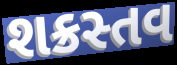
શક્રસ્તવ